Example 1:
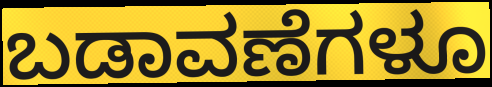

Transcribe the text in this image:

ಬಡಾವಣೆಗಳೂ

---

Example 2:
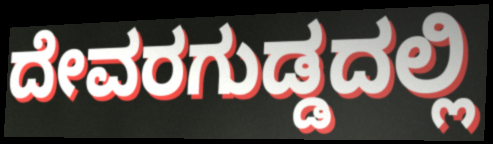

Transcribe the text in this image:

ದೇವರಗುಡ್ಡದಲ್ಲಿ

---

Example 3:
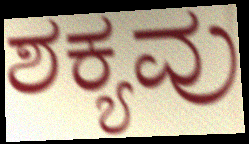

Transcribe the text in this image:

ಶಕ್ಯವು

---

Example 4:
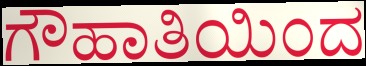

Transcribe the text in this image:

ಗೌಹಾತಿಯಿಂದ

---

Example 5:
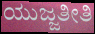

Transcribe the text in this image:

ಯುಜ್ಜತೀತಿ